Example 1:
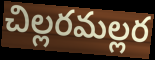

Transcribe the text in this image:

చిల్లరమల్లర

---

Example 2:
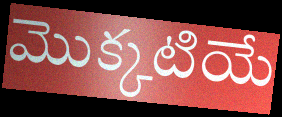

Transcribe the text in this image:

మొక్కటియే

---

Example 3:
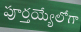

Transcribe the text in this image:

పూర్తయ్యేలోగా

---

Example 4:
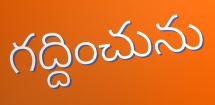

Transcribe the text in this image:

గద్దించును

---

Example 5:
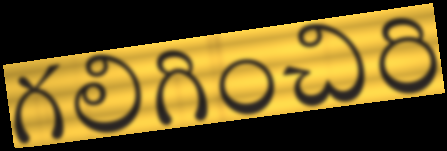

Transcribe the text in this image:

గలిగించిరి